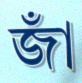
জাঁ